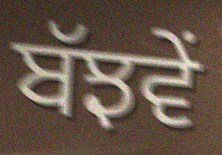
ਬੱਝਵੇਂ